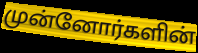
முன்னோர்களின்